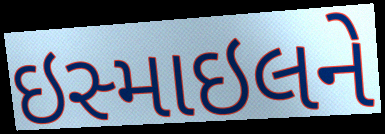
ઇસ્માઇલને